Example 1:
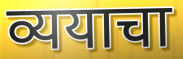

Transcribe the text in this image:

व्ययाचा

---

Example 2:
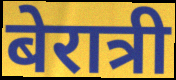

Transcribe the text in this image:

बेरात्री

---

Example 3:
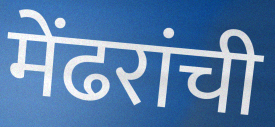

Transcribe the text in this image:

मेंढरांची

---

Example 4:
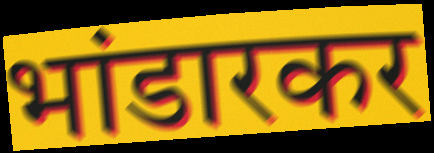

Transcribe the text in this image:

भांडारकर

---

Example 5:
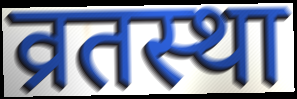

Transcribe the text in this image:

व्रतस्था